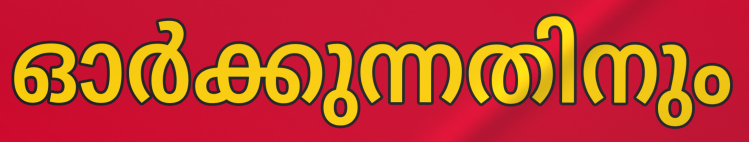
ഓർക്കുന്നതിനും